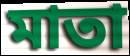
মাতা